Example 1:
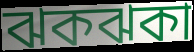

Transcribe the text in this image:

ঝকঝকা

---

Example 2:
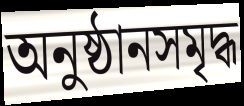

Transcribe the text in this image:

অনুষ্ঠানসমৃদ্ধ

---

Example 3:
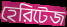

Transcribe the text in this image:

হেরিটেজ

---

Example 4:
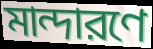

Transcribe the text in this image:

মান্দারণে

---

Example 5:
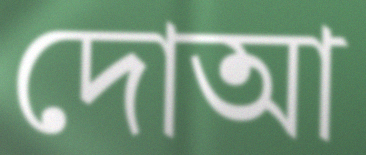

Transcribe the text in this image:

দোআ